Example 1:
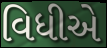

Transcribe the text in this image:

વિધીએ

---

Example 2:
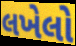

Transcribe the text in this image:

લખેલો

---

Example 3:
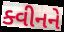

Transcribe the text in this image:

ક્વીનને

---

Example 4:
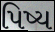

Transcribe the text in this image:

પિષ્ય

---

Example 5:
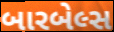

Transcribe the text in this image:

બારબેલ્સ